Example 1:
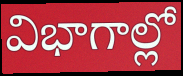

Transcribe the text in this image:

విభాగాల్లో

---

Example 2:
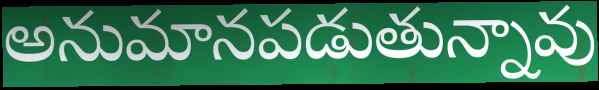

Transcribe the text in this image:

అనుమానపడుతున్నావు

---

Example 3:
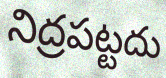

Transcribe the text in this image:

నిద్రపట్టదు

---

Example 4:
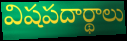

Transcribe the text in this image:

విషపదార్థాలు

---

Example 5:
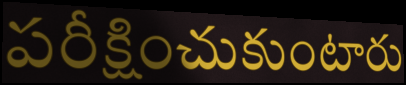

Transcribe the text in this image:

పరీక్షించుకుంటారు